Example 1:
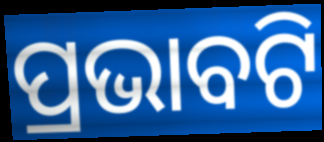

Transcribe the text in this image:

ପ୍ରଭାବଟି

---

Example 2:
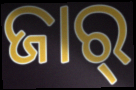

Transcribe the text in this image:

ଜାର୍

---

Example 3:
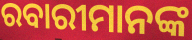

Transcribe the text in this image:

ରବାରୀମାନଙ୍କ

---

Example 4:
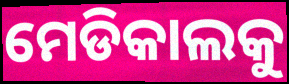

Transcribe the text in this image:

ମେଡିକାଲକୁ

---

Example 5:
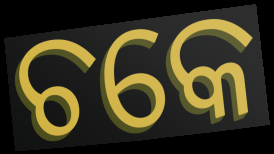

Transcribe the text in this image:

ଚକେ